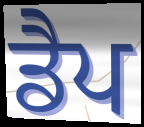
ਡੈਪ